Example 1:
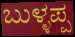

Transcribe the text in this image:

ಬುಳ್ಳಪ್ಪ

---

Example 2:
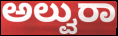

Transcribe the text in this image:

ಅಲ್ವುರಾ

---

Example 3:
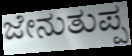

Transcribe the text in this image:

ಜೇನುತುಪ್ಪ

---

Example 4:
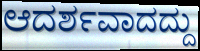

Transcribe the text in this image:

ಆದರ್ಶವಾದದ್ದು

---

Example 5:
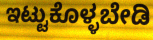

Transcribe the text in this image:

ಇಟ್ಟುಕೊಳ್ಳಬೇಡಿ